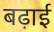
बढ़ाई